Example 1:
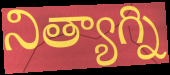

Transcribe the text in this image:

నిత్యాగ్ని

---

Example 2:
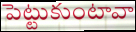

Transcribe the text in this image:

పెట్టుకుంటావా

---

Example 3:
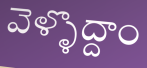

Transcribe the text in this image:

వెళ్ళొద్దాం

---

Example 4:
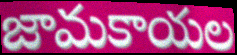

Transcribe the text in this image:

జామకాయల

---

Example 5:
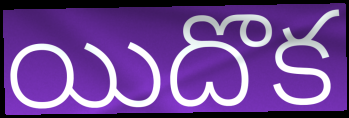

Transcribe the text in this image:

యిదొక